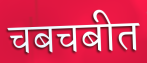
चबचबीत